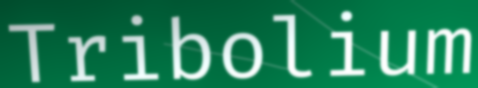
Tribolium